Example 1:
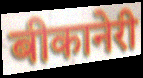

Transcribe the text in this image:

बीकानेरी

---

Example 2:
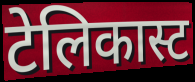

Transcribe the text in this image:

टेलिकास्ट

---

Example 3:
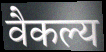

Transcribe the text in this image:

वैकल्य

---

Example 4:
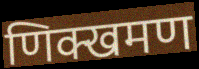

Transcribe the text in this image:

णिक्खमण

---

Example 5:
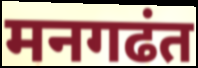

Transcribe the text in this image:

मनगढंत